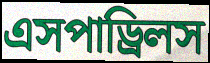
এসপাড্রিলস